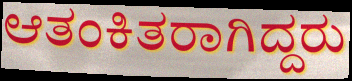
ಆತಂಕಿತರಾಗಿದ್ದರು